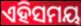
ଏହିସମୟ